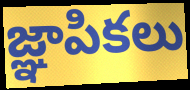
జ్ఞాపికలు